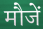
मौजें